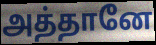
அத்தானே